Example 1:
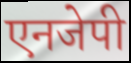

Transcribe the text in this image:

एनजेपी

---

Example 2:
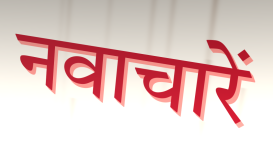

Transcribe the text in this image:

नवाचारें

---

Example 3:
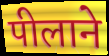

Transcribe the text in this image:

पीलाने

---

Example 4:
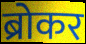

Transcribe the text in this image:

ब्रोकर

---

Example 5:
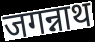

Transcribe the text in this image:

जगन्नाथ